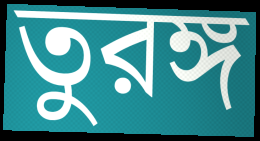
তুরঙ্গ